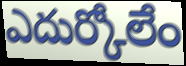
ఎదుర్కోలేం